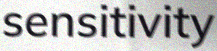
sensitivity